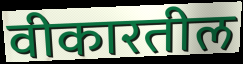
वीकारतील